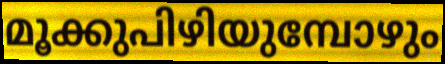
മൂക്കുപിഴിയുമ്പോഴും